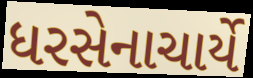
ધરસેનાચાર્યે